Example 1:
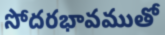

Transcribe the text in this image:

సోదరభావముతో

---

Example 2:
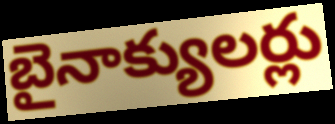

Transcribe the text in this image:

బైనాక్యులర్లు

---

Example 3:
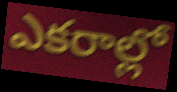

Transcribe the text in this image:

ఎకరాల్లో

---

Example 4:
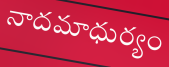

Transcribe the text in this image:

నాదమాధుర్యం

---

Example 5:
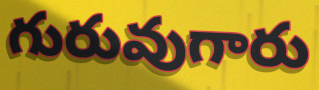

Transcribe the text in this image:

గురువుగారు